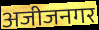
अजीजनगर